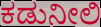
ಕಡುನೀಲಿ